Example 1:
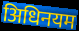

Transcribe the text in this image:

अिधिनयम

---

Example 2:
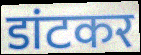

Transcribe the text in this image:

डांटकर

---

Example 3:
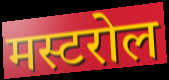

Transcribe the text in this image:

मस्टरोल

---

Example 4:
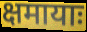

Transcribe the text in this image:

क्षमायाः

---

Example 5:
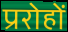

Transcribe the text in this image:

प्ररोहों